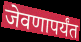
जेवणापर्यंत